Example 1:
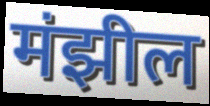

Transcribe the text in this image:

मंझील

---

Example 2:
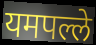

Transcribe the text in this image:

यमपल्ले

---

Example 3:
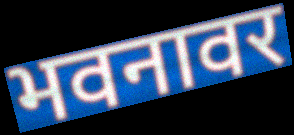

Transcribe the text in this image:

भवनावर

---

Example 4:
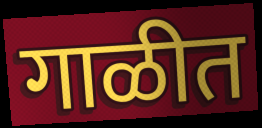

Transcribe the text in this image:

गाळीत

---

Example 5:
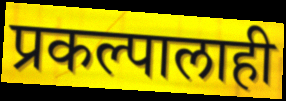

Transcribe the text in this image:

प्रकल्पालाही